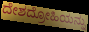
ದೇಶದ್ರೋಹಿಯನ್ನು